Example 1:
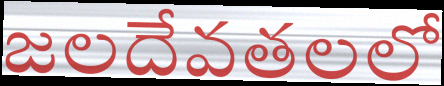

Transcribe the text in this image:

జలదేవతలలో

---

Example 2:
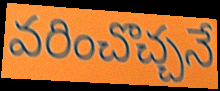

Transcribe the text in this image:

వరించొచ్చనే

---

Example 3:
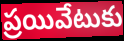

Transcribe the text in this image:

ప్రయివేటుకు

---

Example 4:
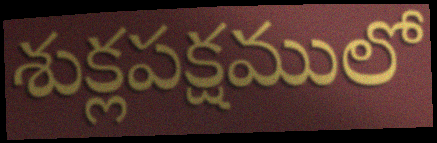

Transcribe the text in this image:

శుక్లపక్షములో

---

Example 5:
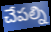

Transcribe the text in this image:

చేపల్ని